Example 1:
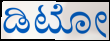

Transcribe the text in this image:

ಡಿಟೋ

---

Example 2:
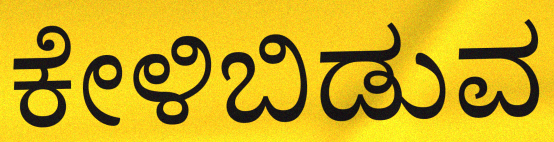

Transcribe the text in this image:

ಕೇಳಿಬಿಡುವ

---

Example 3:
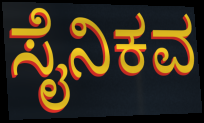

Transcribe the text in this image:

ಸೈನಿಕವ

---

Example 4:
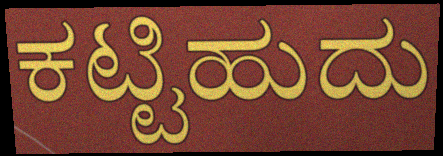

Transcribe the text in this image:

ಕಟ್ಟಿಹುದು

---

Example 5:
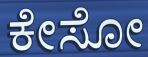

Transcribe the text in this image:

ಕೇಸೋ